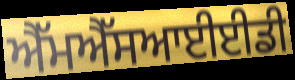
ਐੱਮਐੱਸਆਈਈਡੀ